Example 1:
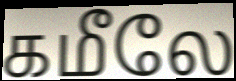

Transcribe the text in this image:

கமீலே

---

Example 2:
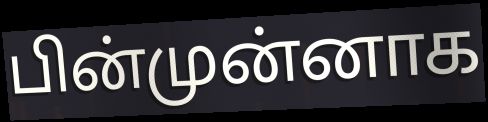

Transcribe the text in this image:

பின்முன்னாக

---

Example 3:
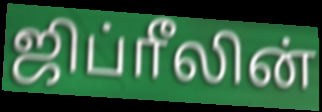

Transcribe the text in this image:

ஜிப்ரீலின்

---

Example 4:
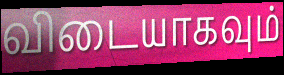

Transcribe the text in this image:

விடையாகவும்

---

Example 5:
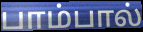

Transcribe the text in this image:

பாம்பால்